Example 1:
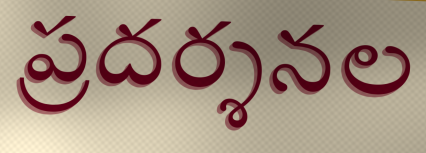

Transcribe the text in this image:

ప్రదర్శనల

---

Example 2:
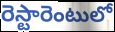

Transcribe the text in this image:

రెస్టారెంటులో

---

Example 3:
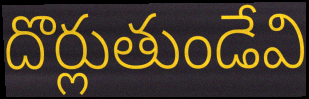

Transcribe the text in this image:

దొర్లుతుండేవి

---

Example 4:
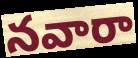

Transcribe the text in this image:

నవారా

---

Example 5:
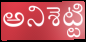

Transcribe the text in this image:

అనిశెట్టి